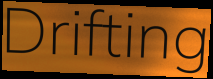
Drifting